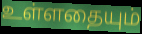
உள்ளதையும்